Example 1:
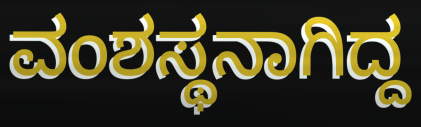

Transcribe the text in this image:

ವಂಶಸ್ಥನಾಗಿದ್ದ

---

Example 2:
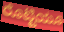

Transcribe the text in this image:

ರೊಟ್ಟಿಯೂ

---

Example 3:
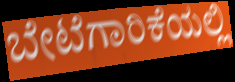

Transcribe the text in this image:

ಬೇಟೆಗಾರಿಕೆಯಲ್ಲಿ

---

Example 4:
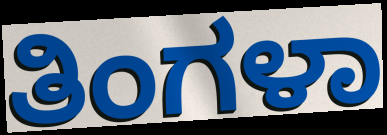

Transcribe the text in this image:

ತಿಂಗಳಾ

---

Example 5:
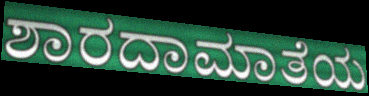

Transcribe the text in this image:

ಶಾರದಾಮಾತೆಯ